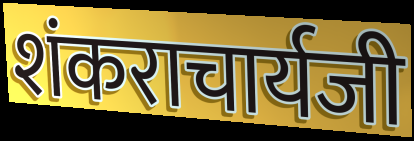
शंकराचार्यजी